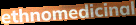
ethnomedicinal